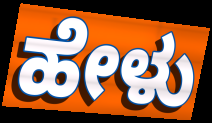
ಹೇಳು